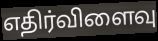
எதிர்விளைவு